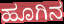
ಹೂಗಿನ